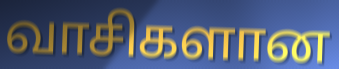
வாசிகளான